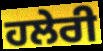
ਹਲੇਰੀ